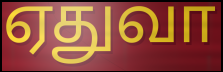
ஏதுவா